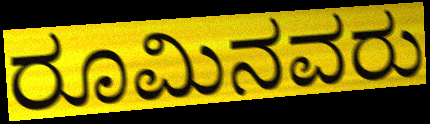
ರೂಮಿನವರು